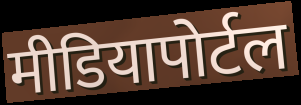
मीडियापोर्टल